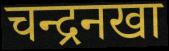
चन्द्रनखा